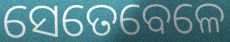
ସେତେବେଳେ